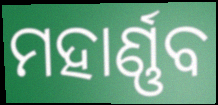
ମହାର୍ଣ୍ଣବ